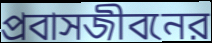
প্রবাসজীবনের